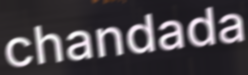
chandada